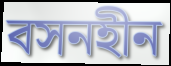
বসনহীন